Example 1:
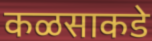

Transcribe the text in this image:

कळसाकडे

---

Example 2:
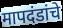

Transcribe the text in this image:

मापदंडांचे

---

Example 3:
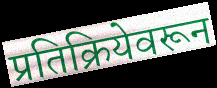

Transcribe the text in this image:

प्रतिक्रियेवरून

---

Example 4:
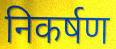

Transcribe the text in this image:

निकर्षण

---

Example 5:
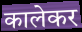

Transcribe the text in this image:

कालेकर